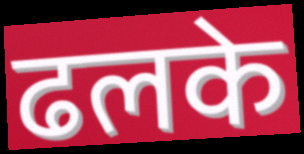
ढलके